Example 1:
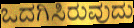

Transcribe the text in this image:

ಒದಗಿಸಿರುವುದು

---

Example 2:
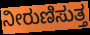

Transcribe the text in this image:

ನೀರುಣಿಸುತ್ತ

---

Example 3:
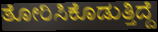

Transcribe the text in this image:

ತೋರಿಸಿಕೊಡುತ್ತಿದ್ದೆ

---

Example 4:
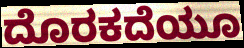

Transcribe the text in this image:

ದೊರಕದೆಯೂ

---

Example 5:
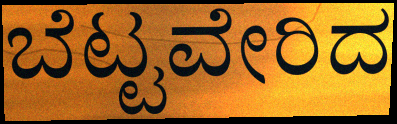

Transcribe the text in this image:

ಬೆಟ್ಟವೇರಿದ